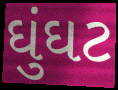
ઘુંઘટ